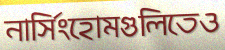
নার্সিংহোমগুলিতেও